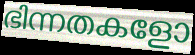
ഭിന്നതകളോ